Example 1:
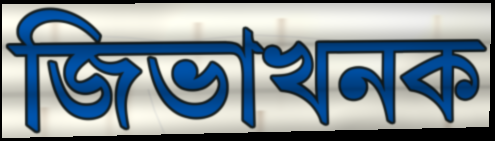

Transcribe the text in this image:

জিভাখনক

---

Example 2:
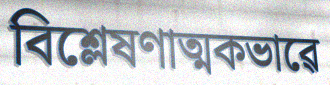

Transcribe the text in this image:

বিশ্লেষণাত্মকভাৱে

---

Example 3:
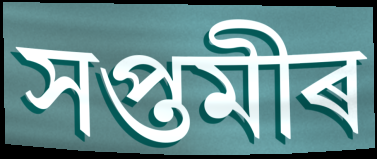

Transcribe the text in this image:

সপ্তমীৰ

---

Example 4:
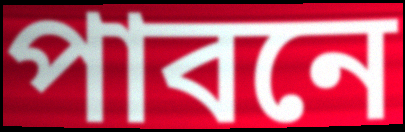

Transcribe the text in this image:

পাবনে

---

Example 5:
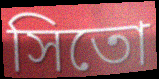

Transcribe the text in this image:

সিতো